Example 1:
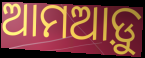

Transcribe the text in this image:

ଆମଆଡ଼ୁ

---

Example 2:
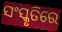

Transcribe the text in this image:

ସଂସ୍କୃତିରେ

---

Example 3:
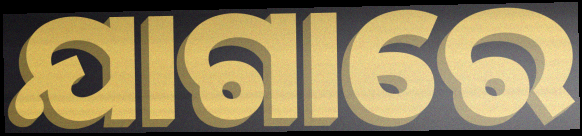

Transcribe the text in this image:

ଯାଗାରେ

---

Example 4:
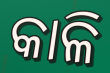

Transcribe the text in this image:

କାଳି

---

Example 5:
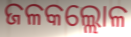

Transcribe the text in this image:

ଜଳକଲ୍ଲୋଳ